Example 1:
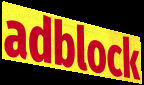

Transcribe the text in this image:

adblock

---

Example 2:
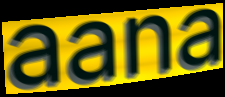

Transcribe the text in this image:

aana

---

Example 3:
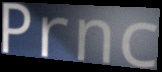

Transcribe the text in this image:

Prnc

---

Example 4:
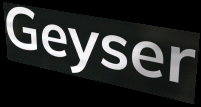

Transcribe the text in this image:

Geyser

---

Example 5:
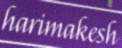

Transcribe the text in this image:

harimakesh